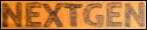
NEXTGEN